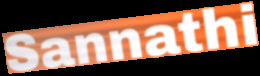
Sannathi